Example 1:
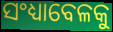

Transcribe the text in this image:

ସଂଧ୍ୟାବେଳକୁ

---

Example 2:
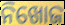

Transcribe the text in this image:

ନିଖୋଜ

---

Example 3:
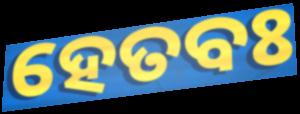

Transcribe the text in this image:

ହେତବଃ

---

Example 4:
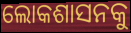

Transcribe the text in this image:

ଲୋକଶାସନକୁ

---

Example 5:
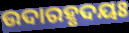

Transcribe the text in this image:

ଉଦାରହୃଦୟଃ